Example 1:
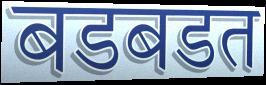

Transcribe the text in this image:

बडबडत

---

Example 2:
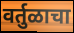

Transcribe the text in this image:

वर्तुळाचा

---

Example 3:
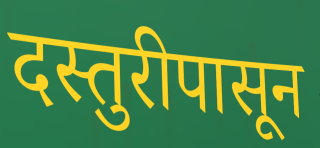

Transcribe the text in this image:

दस्तुरीपासून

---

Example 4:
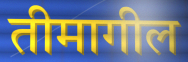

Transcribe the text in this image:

तीमागील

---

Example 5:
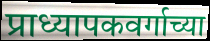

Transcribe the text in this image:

प्राध्यापकवर्गाच्या